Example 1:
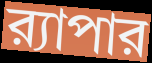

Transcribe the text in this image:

র‍্যাপার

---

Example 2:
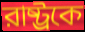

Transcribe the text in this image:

রাষ্ট্রকে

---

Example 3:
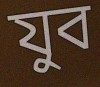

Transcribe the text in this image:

যুব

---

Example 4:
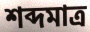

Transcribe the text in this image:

শব্দমাত্র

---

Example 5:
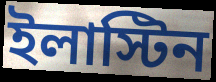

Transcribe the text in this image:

ইলাস্টিন